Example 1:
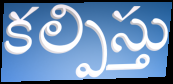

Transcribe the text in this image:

కల్పిస్తు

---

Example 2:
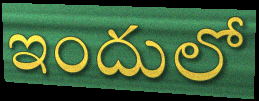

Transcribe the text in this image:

ఇందులో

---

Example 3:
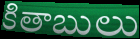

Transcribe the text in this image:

కితాబులు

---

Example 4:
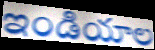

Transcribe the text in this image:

ఇండియాల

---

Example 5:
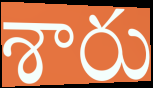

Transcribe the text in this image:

శారు